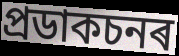
প্ৰডাকচনৰ